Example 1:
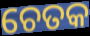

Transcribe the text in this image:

ଚେତକ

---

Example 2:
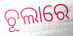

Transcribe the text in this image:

ଚୂଲାରେ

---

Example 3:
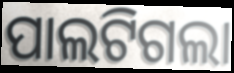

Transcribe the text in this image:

ପାଲଟିଗଲା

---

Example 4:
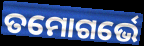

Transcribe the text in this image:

ତମୋଗର୍ଭେ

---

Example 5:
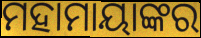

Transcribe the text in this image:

ମହାମାୟାଙ୍କର